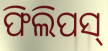
ଫିଲିପସ୍